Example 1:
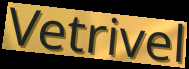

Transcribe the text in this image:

Vetrivel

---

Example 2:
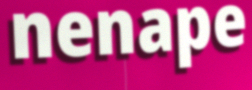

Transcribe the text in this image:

nenape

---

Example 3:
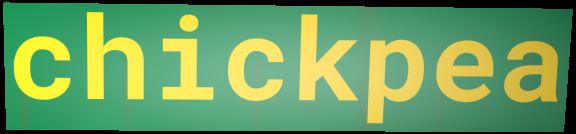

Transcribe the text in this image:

chickpea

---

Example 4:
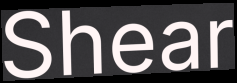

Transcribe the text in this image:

Shear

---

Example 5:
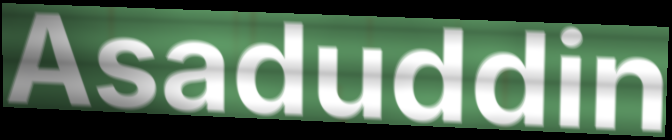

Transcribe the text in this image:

Asaduddin